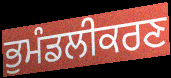
ਭੁਮੰਡਲੀਕਰਣ